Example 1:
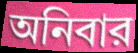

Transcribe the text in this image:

অনিবার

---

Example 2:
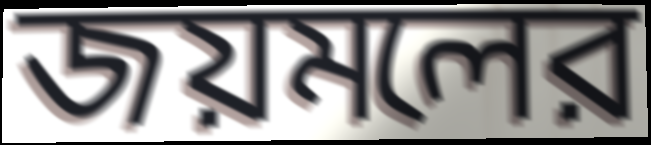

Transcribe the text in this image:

জয়মলের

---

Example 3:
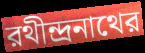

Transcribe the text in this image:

রথীন্দ্রনাথের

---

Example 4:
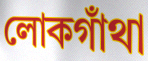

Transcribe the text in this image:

লোকগাঁথা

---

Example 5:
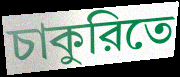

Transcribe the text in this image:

চাকুরিতে